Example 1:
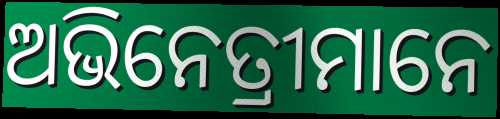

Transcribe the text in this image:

ଅଭିନେତ୍ରୀମାନେ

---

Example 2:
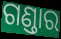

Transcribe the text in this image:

ଗଣ୍ଡାର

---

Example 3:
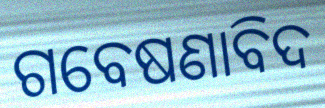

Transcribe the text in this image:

ଗବେଷଣାବିଦ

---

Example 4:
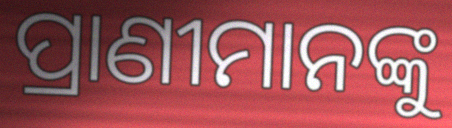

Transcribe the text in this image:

ପ୍ରାଣୀମାନଙ୍କୁ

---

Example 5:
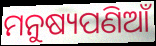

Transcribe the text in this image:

ମନୁଷ୍ୟପଣିଆଁ